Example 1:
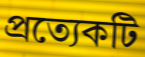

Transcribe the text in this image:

প্রত্যেকটি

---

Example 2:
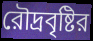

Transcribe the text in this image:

রৌদ্রবৃষ্টির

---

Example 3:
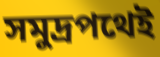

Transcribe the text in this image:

সমুদ্রপথেই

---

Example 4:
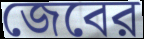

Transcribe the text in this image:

জেবের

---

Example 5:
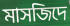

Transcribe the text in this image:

মাসজিদে